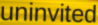
uninvited